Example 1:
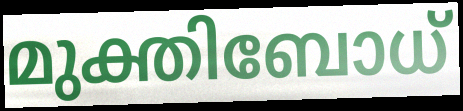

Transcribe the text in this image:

മുക്തിബോധ്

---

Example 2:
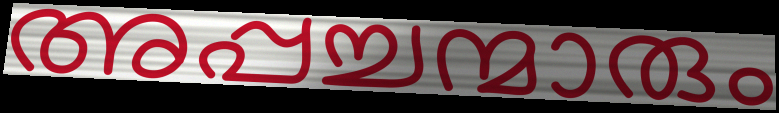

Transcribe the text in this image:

അപ്പച്ചന്മാരും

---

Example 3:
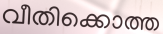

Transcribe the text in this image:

വീതിക്കൊത്ത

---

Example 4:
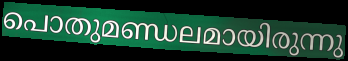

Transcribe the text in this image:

പൊതുമണ്ഡലമായിരുന്നു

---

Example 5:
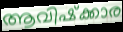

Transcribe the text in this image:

ആവിഷ്‌ക്കാര